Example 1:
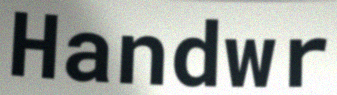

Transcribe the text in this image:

Handwr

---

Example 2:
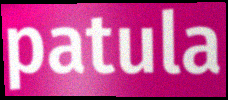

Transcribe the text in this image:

patula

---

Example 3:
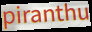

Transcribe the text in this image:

piranthu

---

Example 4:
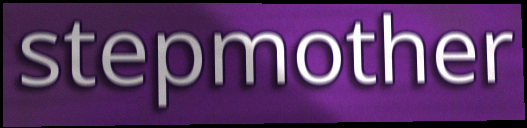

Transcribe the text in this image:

stepmother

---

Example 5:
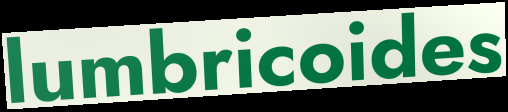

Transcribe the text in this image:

lumbricoides